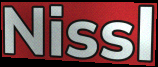
Nissl